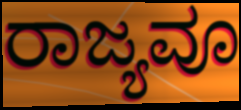
ರಾಜ್ಯವೂ